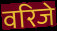
वरिजे